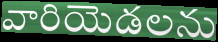
వారియెడలను